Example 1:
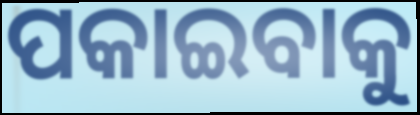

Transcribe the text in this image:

ପକାଇବାକୁ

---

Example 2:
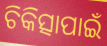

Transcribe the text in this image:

ଚିକିତ୍ସାପାଇଁ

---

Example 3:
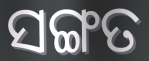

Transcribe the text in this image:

ସଙ୍ଗତ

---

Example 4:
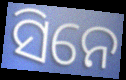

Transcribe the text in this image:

ସିନେ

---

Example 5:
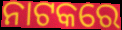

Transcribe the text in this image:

ନାଟକରେ